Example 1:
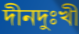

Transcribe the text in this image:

দীনদুঃখী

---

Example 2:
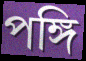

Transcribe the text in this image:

পঙ্গি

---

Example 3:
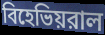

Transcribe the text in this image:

বিহেভিয়রাল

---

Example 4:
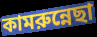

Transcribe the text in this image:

কামরুন্নেছা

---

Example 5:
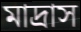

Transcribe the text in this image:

মাদ্রাস